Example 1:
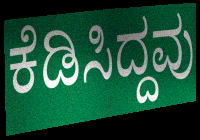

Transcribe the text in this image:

ಕೆಡಿಸಿದ್ದವು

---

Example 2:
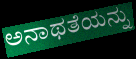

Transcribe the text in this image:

ಅನಾಥತೆಯನ್ನು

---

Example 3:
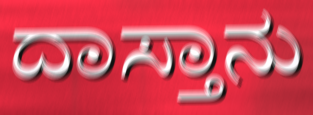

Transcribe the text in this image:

ದಾಸ್ತಾನು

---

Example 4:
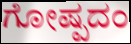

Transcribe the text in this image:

ಗೋಷ್ಪದಂ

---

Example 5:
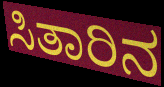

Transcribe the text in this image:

ಸಿತಾರಿನ